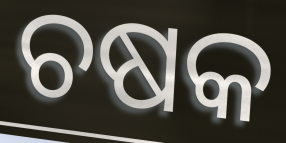
ଚଷକ